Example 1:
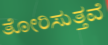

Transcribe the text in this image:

ತೋರಿಸುತ್ತವೆ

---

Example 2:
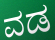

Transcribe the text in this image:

ವಡ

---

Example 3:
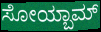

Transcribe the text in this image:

ಸೋಯ್ಬಾಮ್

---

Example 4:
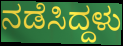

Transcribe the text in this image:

ನಡೆಸಿದ್ದಳು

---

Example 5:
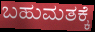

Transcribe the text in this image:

ಬಹುಮತಕ್ಕೆ